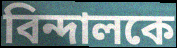
বিন্দালকে